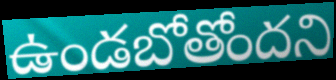
ఉండబోతోందని